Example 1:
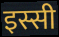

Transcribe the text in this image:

इस्सी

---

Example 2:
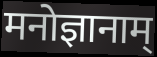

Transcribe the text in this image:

मनोज्ञानाम्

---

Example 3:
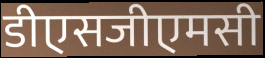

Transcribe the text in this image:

डीएसजीएमसी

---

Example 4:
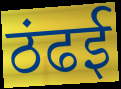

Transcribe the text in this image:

ठंढई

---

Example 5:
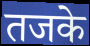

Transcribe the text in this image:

तजके